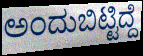
ಅಂದುಬಿಟ್ಟಿದ್ದೆ